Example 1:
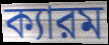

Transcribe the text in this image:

ক্যারম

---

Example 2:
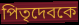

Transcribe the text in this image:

পিতৃদেবকে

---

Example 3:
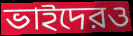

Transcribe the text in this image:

ভাইদেরও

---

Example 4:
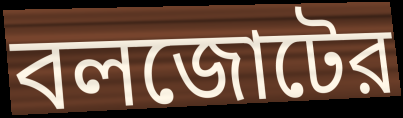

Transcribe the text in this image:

বলজোটের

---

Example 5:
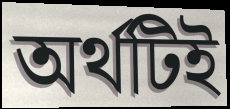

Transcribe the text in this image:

অর্থটিই